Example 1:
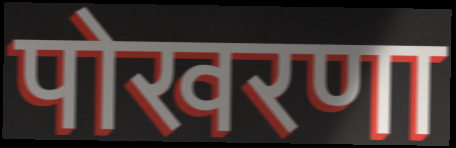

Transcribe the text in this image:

पोखरणा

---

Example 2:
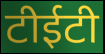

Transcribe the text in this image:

टीईटी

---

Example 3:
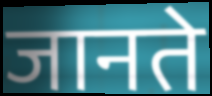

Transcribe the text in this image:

जानते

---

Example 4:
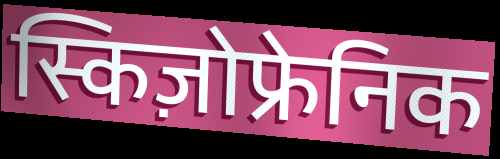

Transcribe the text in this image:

स्किज़ोफ्रेनिक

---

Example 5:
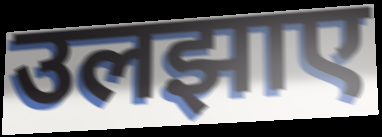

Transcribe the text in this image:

उलझाए